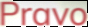
Pravo